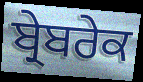
ਬ੍ਰੇਬਰੇਕ